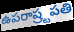
ఉపరాష్ర్టపతి